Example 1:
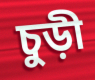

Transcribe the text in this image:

চুড়ী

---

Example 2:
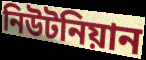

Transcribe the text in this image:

নিউটনিয়ান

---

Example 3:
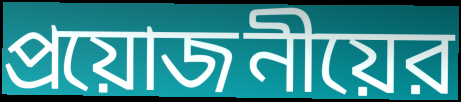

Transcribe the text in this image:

প্রয়োজনীয়ের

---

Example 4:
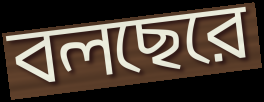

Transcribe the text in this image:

বলছেরে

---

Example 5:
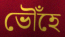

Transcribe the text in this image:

ভৌঁহে